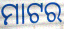
ମାଟର